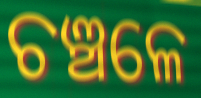
ଚଞ୍ଚଳେ